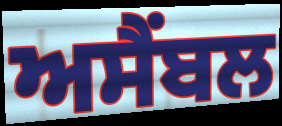
ਅਸੈਂਬਲ